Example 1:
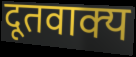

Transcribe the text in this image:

दूतवाक्य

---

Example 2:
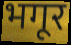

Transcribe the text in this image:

भगूर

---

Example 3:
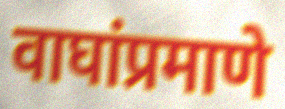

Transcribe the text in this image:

वाघांप्रमाणे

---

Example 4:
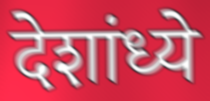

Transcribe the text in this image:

देशांध्ये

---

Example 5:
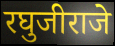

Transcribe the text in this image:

रघुजीराजे